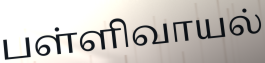
பள்ளிவாயல்